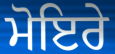
ਮੋਇਰੇ